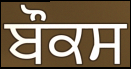
ਬੌਕਸ